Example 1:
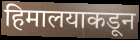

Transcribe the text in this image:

हिमालयाकडून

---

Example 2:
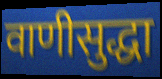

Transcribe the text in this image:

वाणीसुद्धा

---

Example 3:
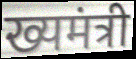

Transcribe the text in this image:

ख्यमंत्री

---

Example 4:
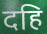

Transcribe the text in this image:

दहि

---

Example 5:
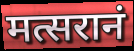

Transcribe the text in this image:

मत्सरानं